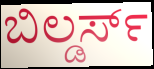
ಬಿಲ್ಡರ್ಸ್